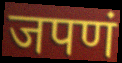
जपणं